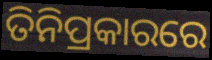
ତିନିପ୍ରକାରରେ